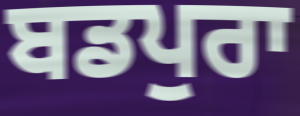
ਬਡਪੁਰਾ